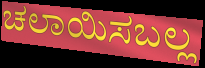
ಚಲಾಯಿಸಬಲ್ಲ